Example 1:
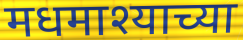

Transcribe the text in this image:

मधमाश्याच्या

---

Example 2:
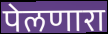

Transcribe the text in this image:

पेलणारा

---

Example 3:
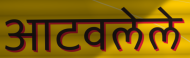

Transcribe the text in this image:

आटवलेले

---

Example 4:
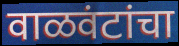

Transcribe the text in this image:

वाळवंटांचा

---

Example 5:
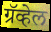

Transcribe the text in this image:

ग्रॅव्हेल